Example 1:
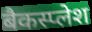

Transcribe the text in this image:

बैकस्प्लेश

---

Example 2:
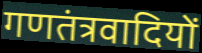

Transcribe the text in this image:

गणतंत्रवादियों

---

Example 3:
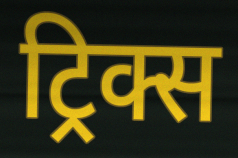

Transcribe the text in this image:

ट्रिक्स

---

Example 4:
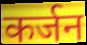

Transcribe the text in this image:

कर्जन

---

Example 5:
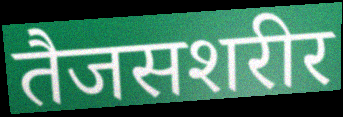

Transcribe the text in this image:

तैजसशरीर